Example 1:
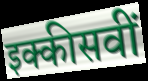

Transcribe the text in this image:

इक्‍कीसवीं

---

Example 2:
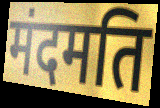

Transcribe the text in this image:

मंदमति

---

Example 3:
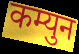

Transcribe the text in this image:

कम्युन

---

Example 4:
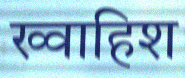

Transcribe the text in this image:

ख्वाहिश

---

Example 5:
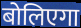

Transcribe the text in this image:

बोलिएगा